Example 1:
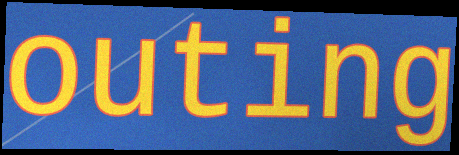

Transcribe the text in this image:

outing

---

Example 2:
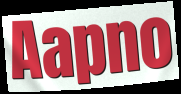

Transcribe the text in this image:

Aapno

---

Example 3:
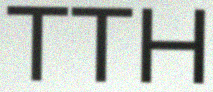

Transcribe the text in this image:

TTH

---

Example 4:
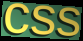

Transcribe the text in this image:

css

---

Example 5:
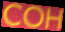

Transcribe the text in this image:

COH